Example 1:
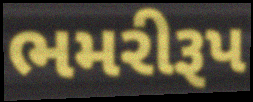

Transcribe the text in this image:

ભમરીરૂપ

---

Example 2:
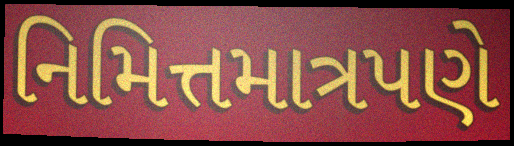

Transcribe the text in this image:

નિમિત્તમાત્રપણે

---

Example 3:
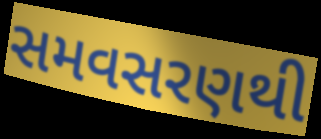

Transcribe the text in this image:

સમવસરણથી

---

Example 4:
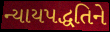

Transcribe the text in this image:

ન્યાયપદ્ધતિને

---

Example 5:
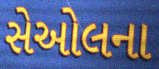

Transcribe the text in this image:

સેઓલના